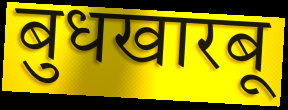
बुधखारबू